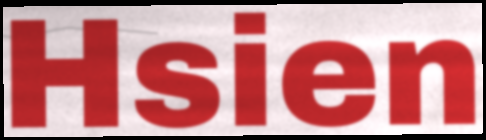
Hsien